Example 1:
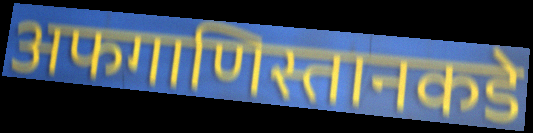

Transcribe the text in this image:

अफगाणिस्तानकडे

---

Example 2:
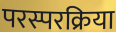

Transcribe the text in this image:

परस्परक्रिया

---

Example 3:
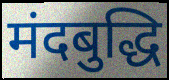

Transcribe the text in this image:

मंदबुद्धि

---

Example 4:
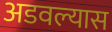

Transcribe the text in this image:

अडवल्यास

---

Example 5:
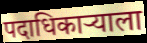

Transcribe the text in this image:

पदाधिकाऱ्याला